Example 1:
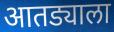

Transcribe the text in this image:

आतड्याला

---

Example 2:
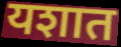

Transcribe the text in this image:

यशात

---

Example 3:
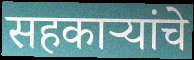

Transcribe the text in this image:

सहकाऱ्यांचे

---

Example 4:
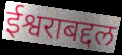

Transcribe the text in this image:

ईश्वराबद्दल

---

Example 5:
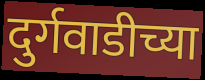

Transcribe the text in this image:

दुर्गवाडीच्या